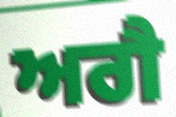
ਅਗੈ